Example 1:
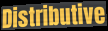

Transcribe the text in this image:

Distributive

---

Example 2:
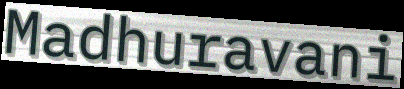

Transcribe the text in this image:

Madhuravani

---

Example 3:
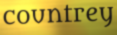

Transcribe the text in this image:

countrey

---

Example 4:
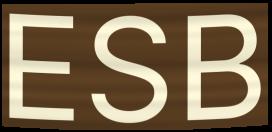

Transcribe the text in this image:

ESB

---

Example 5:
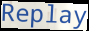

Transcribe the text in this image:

Replay